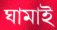
ঘামাই